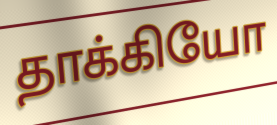
தாக்கியோ